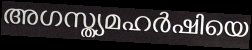
അഗസ്ത്യമഹർഷിയെ